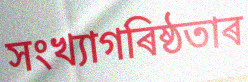
সংখ্যাগৰিষ্ঠতাৰ